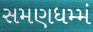
સમણધમ્મં